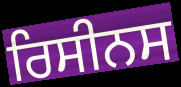
ਰਿਸੀਨਸ